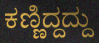
ಕಣ್ಣಿದ್ದದ್ದು